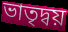
ভাতৃদ্বয়